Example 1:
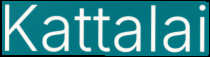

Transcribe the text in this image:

Kattalai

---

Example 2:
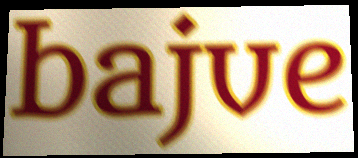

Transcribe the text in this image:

bajue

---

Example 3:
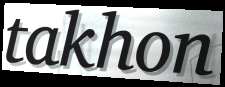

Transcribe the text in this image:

takhon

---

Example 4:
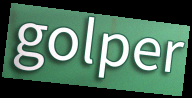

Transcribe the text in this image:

golper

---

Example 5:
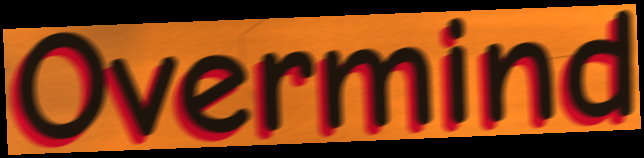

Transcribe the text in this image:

Overmind